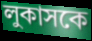
লুকাসকে